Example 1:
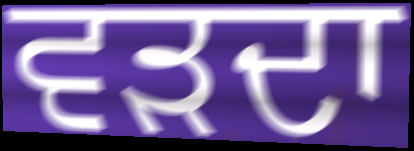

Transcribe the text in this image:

ਵੜਦਾ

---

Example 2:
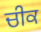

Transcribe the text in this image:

ਚੀਕ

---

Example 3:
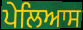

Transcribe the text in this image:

ਪੇਲਿਆਸ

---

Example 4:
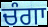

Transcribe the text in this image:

ਚੰਗਾ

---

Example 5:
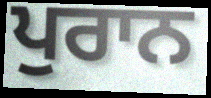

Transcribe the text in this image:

ਪੁਰਾਨ